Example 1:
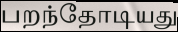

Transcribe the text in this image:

பறந்தோடியது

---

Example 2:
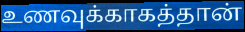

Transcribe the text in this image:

உணவுக்காகத்தான்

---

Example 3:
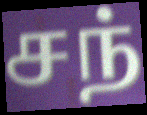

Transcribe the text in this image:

சந்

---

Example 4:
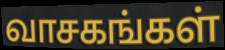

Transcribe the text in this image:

வாசகங்கள்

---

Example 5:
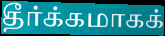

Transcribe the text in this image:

தீர்க்கமாகக்